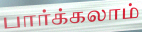
பார்க்கலாம்